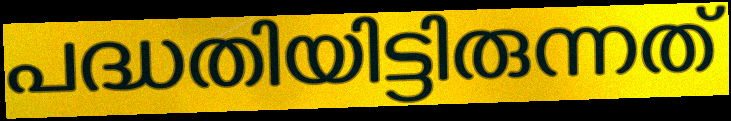
പദ്ധതിയിട്ടിരുന്നത്